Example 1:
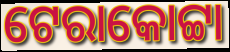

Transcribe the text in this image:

ଟେରାକୋଟ୍ଟା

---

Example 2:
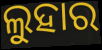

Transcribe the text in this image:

ଲୁହାର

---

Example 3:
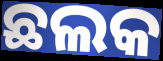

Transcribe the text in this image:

ଛଲକ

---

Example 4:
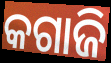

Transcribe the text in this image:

କଗାଜି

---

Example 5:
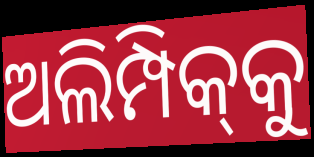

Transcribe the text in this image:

ଅଲିମ୍ପିକ୍‌କୁ